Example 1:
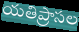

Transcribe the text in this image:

యతిప్రాసల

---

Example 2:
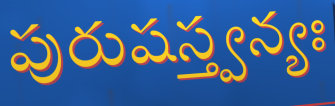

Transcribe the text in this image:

పురుషస్త్వన్యః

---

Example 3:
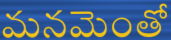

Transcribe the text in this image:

మనమెంతో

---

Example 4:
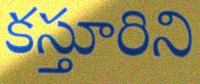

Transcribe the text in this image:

కస్తూరిని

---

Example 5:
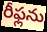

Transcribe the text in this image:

రీఫ్లను